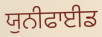
ਯੁਨੀਫਾਈਡ